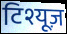
टिश्यूज़